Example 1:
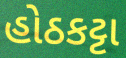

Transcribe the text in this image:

હોઠકટ્ટા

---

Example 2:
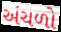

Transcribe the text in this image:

અંચળો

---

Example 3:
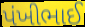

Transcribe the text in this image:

પંખીભાઈ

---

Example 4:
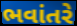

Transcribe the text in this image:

ભવાંતરે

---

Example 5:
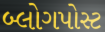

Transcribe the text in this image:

બ્લોગપોસ્ટ